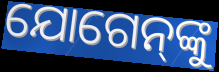
ଯୋଗେନ୍‌ଙ୍କୁ